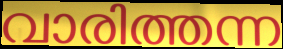
വാരിത്തന്ന